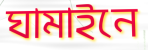
ঘামাইনে